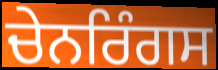
ਚੇਨਰਿੰਗਸ